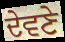
ਦੇਵਣੇ